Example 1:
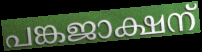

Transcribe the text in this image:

പങ്കജാക്ഷന്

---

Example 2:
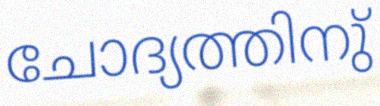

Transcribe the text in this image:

ചോദ്യത്തിനു്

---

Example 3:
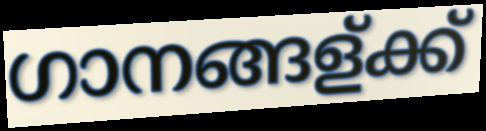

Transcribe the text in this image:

ഗാനങ്ങള്ക്ക്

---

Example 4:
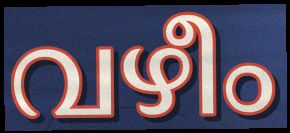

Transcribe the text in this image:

വഴീം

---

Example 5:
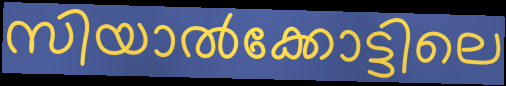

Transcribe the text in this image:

സിയാൽക്കോട്ടിലെ